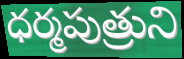
ధర్మపుత్రుని